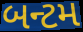
બન્ટમ